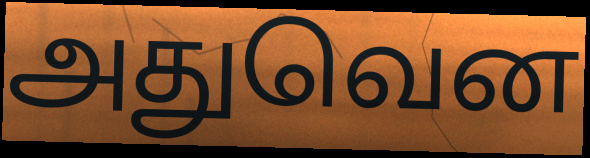
அதுவென